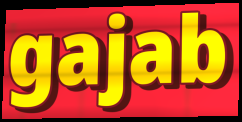
gajab